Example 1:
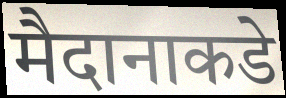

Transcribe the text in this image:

मैदानाकडे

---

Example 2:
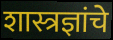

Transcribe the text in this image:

शास्त्रज्ञांचे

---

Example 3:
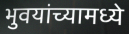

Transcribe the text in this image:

भुवयांच्यामध्ये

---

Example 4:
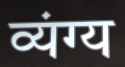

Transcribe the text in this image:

व्यंग्य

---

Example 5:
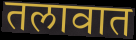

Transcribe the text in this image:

तलावात